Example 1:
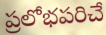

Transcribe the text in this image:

ప్రలోభపరిచే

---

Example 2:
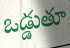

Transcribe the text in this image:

ఒడ్డుతూ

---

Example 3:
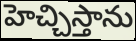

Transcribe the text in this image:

హెచ్చిస్తాను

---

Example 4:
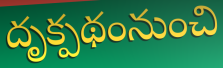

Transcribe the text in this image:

దృక్పథంనుంచి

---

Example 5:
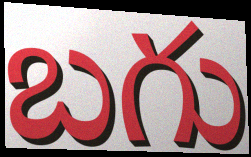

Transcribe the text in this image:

బగు